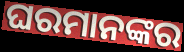
ଘରମାନଙ୍କର